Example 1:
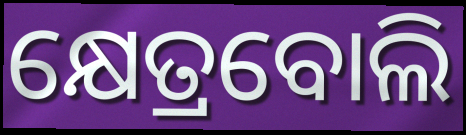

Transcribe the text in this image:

କ୍ଷେତ୍ରବୋଲି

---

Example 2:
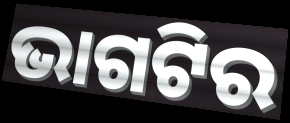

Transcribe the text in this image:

ଭାଗଟିର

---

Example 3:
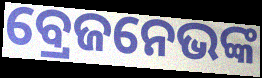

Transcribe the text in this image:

ବ୍ରେଜନେଭଙ୍କ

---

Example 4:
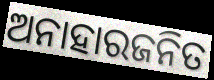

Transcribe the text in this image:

ଅନାହାରଜନିତ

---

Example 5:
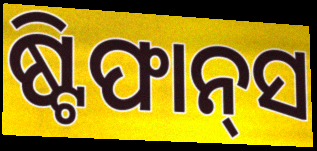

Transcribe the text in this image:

ଷ୍ଟିଫାନ୍‍ସ